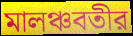
মালঞ্চবতীর